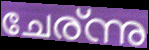
ചേര്ന്നു